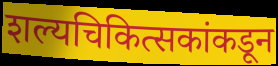
शल्यचिकित्सकांकडून